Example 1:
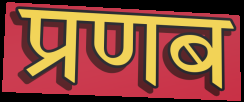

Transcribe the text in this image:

प्रणब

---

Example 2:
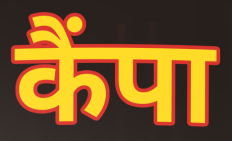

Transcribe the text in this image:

कैंपा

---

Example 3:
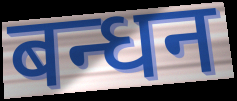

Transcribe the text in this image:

बन्धन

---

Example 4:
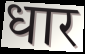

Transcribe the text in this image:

धार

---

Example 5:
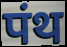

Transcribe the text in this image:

पंथ